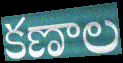
కణాల